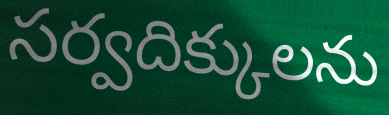
సర్వదిక్కులను